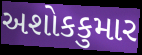
અશોકકુમાર